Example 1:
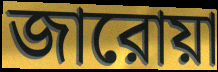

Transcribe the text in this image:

জারোয়া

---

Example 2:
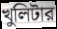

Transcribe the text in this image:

খুলিটার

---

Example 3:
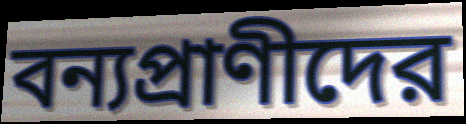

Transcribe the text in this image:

বন্যপ্রাণীদের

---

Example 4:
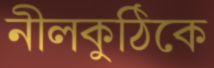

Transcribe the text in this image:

নীলকুঠিকে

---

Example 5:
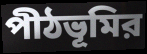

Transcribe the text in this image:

পীঠভূমির